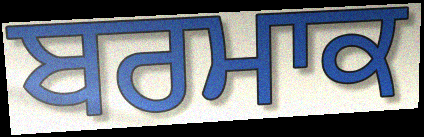
ਬਰਮਾਕ